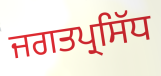
ਜਗਤਪ੍ਰਸਿੱਧ